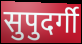
सुपुदर्गी